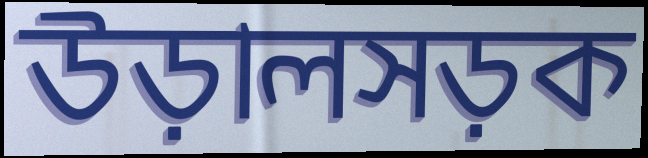
উড়ালসড়ক